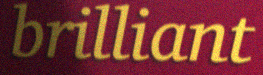
brilliant